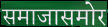
समाजासमोर